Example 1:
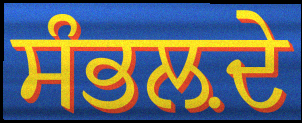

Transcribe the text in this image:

ਸੰਭਲ਼ਦੇ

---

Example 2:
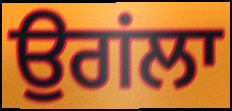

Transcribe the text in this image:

ਉਗਂਲਾ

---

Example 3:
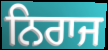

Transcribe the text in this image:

ਨਿਰਾਜ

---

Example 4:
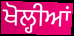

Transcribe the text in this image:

ਖੋਲ੍ਹੀਆਂ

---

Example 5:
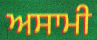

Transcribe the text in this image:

ਅਸਾਮੀ